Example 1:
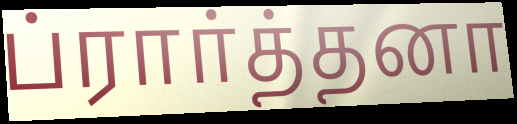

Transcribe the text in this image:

ப்ரார்த்தனா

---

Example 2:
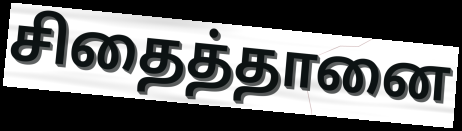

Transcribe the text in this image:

சிதைத்தானை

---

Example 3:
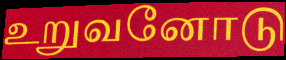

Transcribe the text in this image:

உறுவனோடு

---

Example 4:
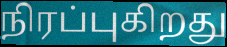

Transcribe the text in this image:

நிரப்புகிறது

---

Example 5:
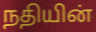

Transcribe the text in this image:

நதியின்